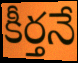
కీర్తనే